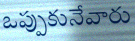
ఒప్పుకునేవారు